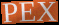
PEX